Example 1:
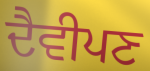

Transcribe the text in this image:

ਦੈਵੀਪਣ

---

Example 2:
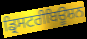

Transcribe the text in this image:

ਡ੍ਰਿਸਟਰੀਬਿਊਸ਼ਨ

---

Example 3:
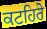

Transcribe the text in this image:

ਕਟਹਿਰੇ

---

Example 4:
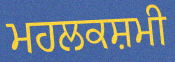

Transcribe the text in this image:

ਮਹਲਕਸ਼ਮੀ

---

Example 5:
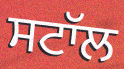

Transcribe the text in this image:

ਸਟਾੱਲ